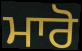
ਮਾਰੋ